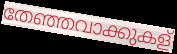
തേഞ്ഞവാക്കുകള്